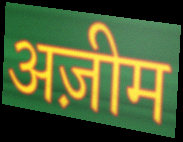
अज़ीम